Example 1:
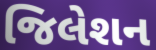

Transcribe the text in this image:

જિલેશન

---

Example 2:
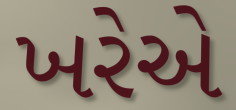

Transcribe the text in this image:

ખરેએ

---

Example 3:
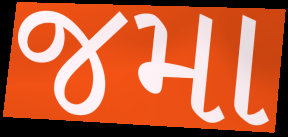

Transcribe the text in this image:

જમા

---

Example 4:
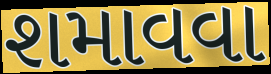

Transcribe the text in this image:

શમાવવા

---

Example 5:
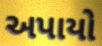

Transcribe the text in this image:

અપાયો